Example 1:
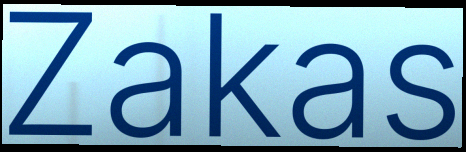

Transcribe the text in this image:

Zakas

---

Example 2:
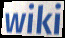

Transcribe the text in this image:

wiki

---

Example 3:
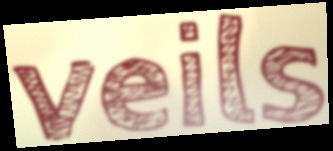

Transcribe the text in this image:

veils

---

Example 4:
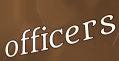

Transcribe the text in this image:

officers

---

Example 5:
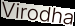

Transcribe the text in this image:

Virodha